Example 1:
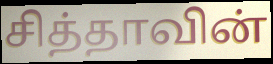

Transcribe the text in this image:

சித்தாவின்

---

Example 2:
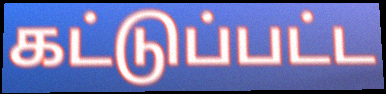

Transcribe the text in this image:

கட்டுப்பட்ட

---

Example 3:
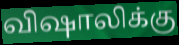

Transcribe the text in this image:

விஷாலிக்கு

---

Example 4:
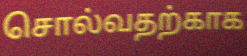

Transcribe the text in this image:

சொல்வதற்காக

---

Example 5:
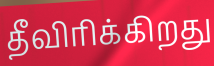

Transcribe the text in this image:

தீவிரிக்கிறது